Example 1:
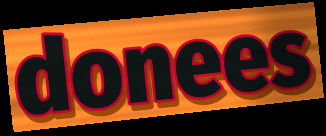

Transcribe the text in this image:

donees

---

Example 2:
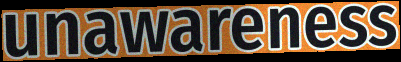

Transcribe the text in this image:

unawareness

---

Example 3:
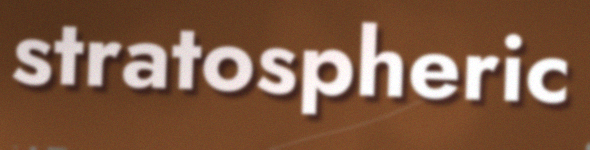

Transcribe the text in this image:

stratospheric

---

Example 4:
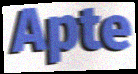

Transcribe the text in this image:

Apte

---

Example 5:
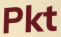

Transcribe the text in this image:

Pkt